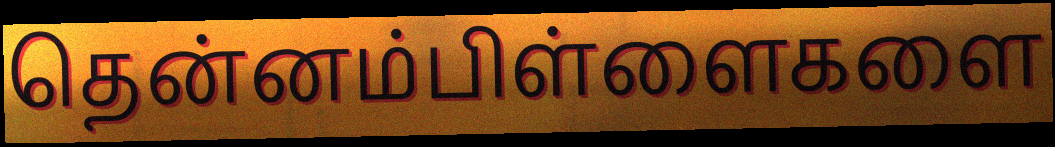
தென்னம்பிள்ளைகளை